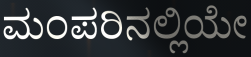
ಮಂಪರಿನಲ್ಲಿಯೇ